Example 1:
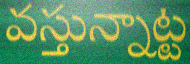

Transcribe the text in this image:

వస్తున్నాట్ట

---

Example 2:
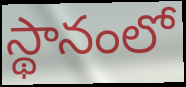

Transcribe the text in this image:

స్థానంలో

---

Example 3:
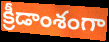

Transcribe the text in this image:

క్రీడాంశంగా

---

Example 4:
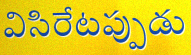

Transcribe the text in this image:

విసిరేటప్పుడు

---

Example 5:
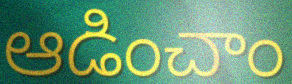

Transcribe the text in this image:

ఆడించాం